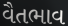
વૈતભાવ